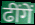
ढींगें